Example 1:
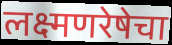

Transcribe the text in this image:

लक्ष्मणरेषेचा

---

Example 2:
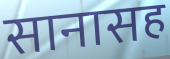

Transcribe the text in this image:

सानासह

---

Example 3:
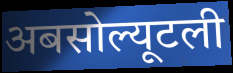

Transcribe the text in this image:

अबसोल्यूटली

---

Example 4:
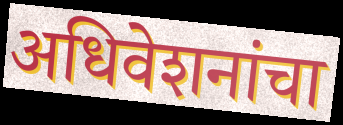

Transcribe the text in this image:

अधिवेशनांचा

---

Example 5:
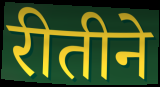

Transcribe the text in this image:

रीतीने